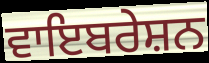
ਵਾਇਬਰੇਸ਼ਨ